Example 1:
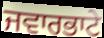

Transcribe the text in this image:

ਜਵਾਰਭਾਟੇ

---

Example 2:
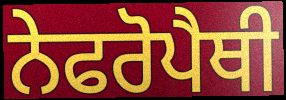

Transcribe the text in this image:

ਨੇਫਰੋਪੈਥੀ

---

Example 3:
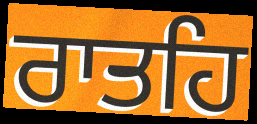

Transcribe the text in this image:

ਰਾਤਹਿ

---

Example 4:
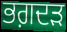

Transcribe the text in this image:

ਭਗ਼ਦੜ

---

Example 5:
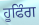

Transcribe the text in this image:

ਹੂਫਿੰਗ